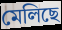
মেলিছে